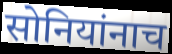
सोनियांनाच